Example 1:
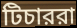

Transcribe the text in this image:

টিচাররা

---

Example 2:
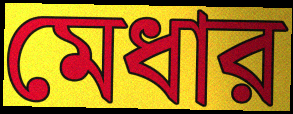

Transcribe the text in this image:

মেধার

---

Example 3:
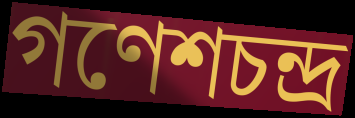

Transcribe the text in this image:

গণেশচন্দ্র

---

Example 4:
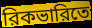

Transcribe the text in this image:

রিকভারিতে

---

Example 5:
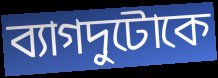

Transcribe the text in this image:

ব্যাগদুটোকে